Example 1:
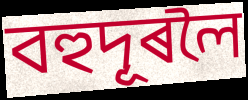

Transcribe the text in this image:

বহুদূৰলৈ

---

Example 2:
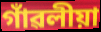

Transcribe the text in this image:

গাঁৱলীয়া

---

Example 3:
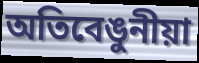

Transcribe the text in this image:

অতিবেঙুনীয়া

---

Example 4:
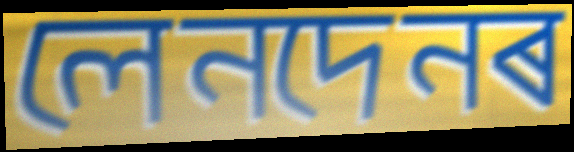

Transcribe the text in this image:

লেনদেনৰ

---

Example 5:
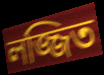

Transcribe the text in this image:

লজ্জিত